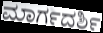
ಮಾರ್ಗದರ್ಶಿ